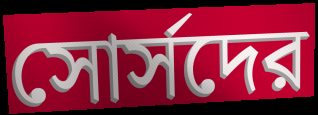
সোর্সদের